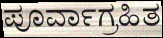
ಪೂರ್ವಾಗ್ರಹಿತ